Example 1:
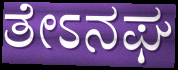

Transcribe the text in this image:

ತೇಽನಘ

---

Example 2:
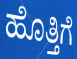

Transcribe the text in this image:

ಹೊತ್ತಿಗೆ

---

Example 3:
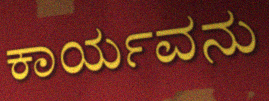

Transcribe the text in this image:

ಕಾರ್ಯವನು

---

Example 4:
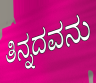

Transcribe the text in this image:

ತಿನ್ನದವನು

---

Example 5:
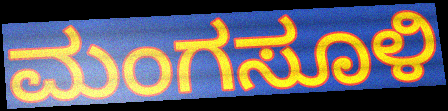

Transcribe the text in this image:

ಮಂಗಸೂಳಿ